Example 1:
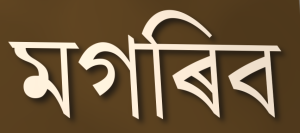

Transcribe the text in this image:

মগৰিব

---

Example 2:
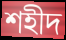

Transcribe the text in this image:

শহীদ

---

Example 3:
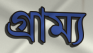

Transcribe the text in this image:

গ্ৰাম্য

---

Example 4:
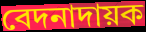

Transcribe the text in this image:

বেদনাদায়ক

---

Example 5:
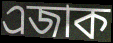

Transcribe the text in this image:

এজাক